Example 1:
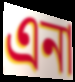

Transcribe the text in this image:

এনা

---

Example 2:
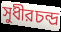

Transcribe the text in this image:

সুধীরচন্দ্র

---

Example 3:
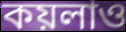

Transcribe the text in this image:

কয়লাও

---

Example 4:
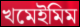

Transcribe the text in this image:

খমেইমিম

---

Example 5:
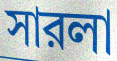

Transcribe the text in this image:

সারলা